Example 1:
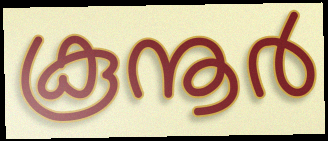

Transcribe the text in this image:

കൂനൂർ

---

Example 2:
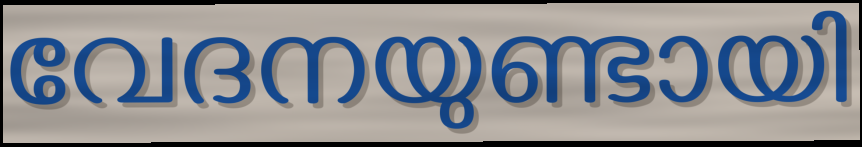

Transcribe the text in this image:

വേദനയുണ്ടായി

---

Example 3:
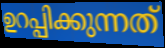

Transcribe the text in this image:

ഉറപ്പിക്കുന്നത്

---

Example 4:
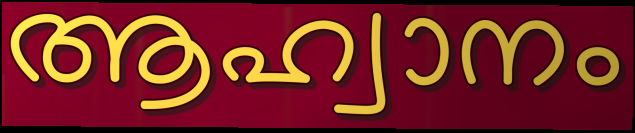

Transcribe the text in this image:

ആഹ്വാനം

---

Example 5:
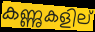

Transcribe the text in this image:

കണ്ണുകളില്